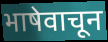
भाषेवाचून